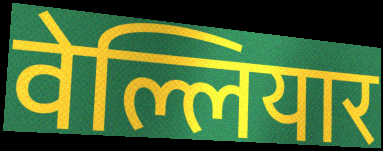
वेल्लियार